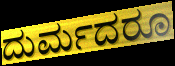
ದುರ್ಮದರೂ